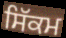
ਸਿੱਕਮ